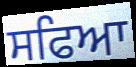
ਸਫਿਆ